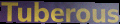
Tuberous